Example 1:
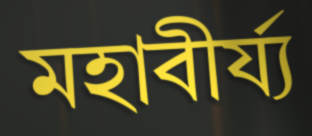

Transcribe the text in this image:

মহাবীর্য্য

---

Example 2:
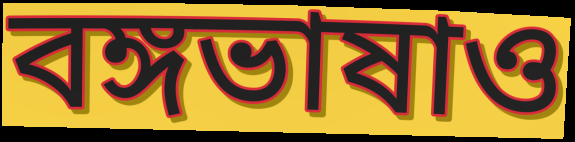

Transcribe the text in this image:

বঙ্গভাষাও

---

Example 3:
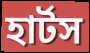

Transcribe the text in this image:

হার্টস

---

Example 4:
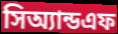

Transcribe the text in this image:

সিঅ্যান্ডএফ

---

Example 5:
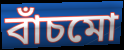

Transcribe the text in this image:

বাঁচমো